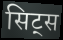
सिट्स